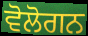
ਵੋਲੋਗਨ